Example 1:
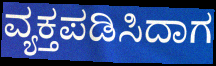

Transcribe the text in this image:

ವ್ಯಕ್ತಪಡಿಸಿದಾಗ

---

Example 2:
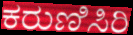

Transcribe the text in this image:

ಕರುಣಿಸಿರಿ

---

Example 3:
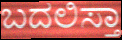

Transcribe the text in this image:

ಬದಲಿಸ್ತಾ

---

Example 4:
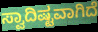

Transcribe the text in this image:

ಸ್ವಾದಿಷ್ಟವಾಗಿದೆ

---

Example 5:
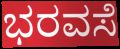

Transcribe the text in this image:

ಭರವಸೆ